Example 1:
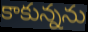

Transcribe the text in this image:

కాకున్నను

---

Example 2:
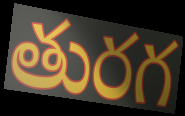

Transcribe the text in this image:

తురగ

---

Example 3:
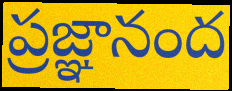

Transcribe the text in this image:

ప్రజ్ఞానంద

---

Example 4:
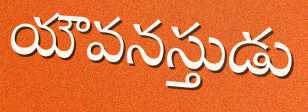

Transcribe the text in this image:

యౌవనస్తుడు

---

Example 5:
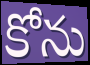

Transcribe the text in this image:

కోను